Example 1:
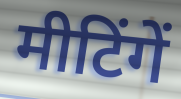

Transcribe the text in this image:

मीटिंगें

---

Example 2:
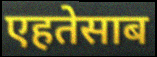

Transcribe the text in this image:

एहतेसाब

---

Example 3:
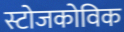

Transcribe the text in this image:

स्टोजकोविक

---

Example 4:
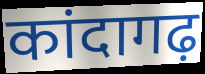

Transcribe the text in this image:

कांदागढ़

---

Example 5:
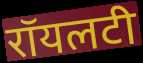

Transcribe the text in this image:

रॉयलटी